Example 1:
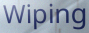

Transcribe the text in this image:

Wiping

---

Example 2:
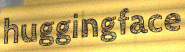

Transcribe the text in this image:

huggingface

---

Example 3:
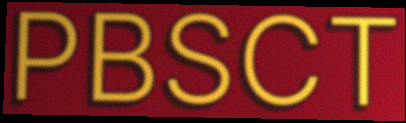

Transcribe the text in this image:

PBSCT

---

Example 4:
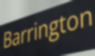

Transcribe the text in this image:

Barrington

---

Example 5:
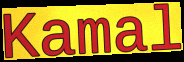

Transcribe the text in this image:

Kamal